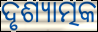
ଦୃଶ୍ୟାତ୍ମକ